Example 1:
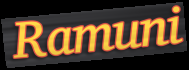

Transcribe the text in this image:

Ramuni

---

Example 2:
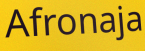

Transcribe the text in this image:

Afronaja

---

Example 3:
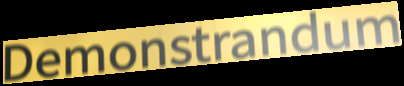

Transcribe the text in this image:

Demonstrandum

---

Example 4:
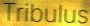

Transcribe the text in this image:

Tribulus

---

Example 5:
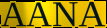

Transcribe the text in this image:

AANA